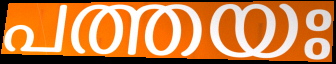
പത്തയഃ